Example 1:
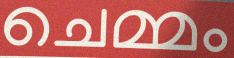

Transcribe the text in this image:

ചെമ്മം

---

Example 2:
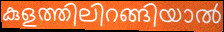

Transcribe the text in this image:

കുളത്തിലിറങ്ങിയാൽ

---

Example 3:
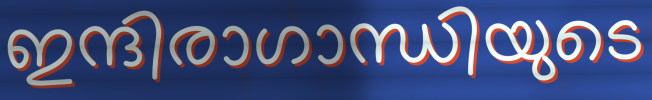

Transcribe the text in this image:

ഇന്ദിരാഗാന്ധിയുടെ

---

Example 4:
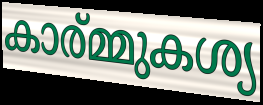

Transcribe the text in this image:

കാര്മ്മുകശ്യ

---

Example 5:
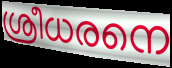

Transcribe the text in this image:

ശ്രീധരനെ